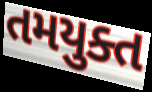
તમયુક્ત